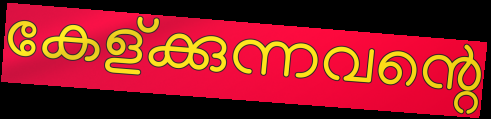
കേള്ക്കുന്നവന്റെ